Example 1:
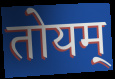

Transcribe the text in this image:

तोयम्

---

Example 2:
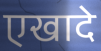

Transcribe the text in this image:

एखादे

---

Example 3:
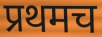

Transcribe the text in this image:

प्रथमच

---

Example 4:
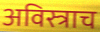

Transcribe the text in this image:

अविस्त्राच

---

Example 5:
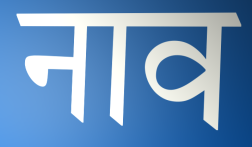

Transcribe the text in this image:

नाव